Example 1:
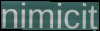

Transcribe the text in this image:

nimicit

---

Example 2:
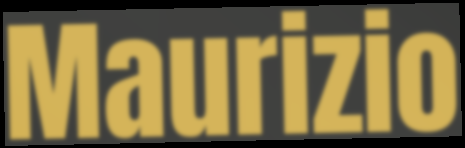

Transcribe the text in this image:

Maurizio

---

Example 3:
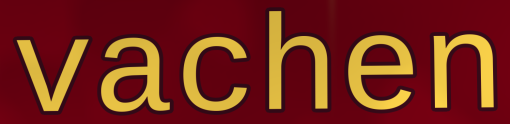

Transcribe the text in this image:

vachen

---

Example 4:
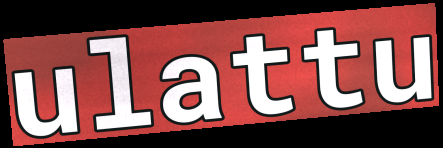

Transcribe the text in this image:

ulattu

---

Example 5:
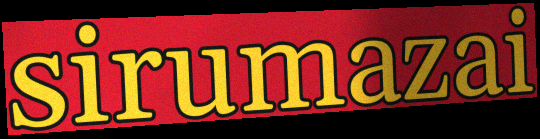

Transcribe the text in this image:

sirumazai